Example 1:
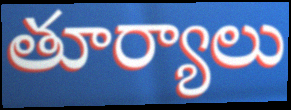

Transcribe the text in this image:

తూర్యాలు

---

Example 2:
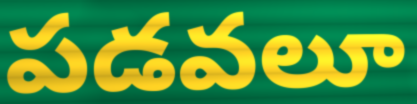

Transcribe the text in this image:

పడవలూ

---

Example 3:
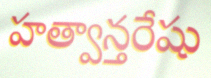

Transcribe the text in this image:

హత్వాన్తరేషు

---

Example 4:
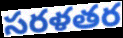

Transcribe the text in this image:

సరళతర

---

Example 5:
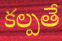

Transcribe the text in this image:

కల్పతే